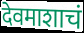
देवमाशाचं